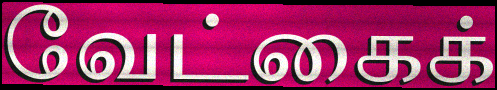
வேட்கைக்